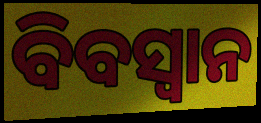
ବିବସ୍ୱାନ